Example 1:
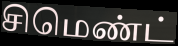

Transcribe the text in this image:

சிமெண்ட்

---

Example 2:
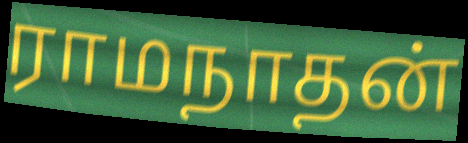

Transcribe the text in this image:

ராமநாதன்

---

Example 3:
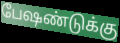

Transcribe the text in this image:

பேஷண்டுக்கு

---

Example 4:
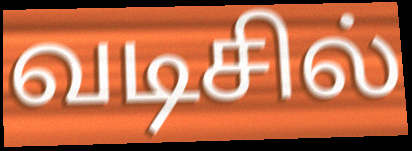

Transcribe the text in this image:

வடிசில்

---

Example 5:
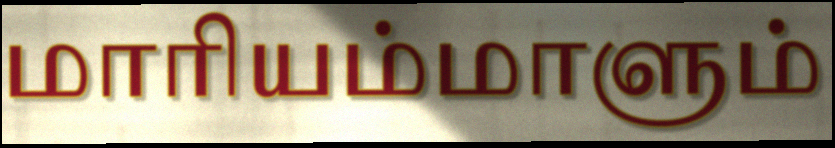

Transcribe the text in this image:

மாரியம்மாளும்